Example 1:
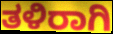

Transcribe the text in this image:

ತಳಿರಾಗಿ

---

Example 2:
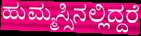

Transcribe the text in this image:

ಹುಮ್ಮಸ್ಸಿನಲ್ಲಿದ್ದರೆ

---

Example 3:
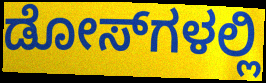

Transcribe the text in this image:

ಡೋಸ್‌ಗಳಲ್ಲಿ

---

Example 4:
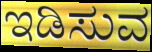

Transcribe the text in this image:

ಇಡಿಸುವ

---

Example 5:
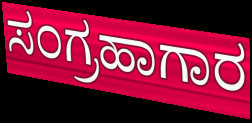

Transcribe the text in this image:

ಸಂಗ್ರಹಾಗಾರ